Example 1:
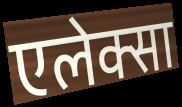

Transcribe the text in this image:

एलेक्सा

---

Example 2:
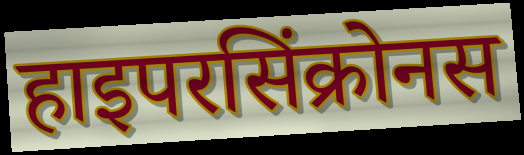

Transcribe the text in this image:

हाइपरसिंक्रोनस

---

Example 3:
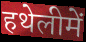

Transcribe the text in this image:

हथेलीमें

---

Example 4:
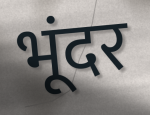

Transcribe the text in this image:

भूंदर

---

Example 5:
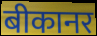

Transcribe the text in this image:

बीकानर